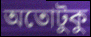
অতোটুকু